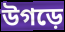
উগড়ে